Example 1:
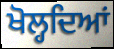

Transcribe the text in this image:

ਖੋਲ੍ਹਦਿਆਂ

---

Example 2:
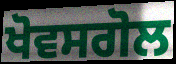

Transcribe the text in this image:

ਖੋਵਸਗੋਲ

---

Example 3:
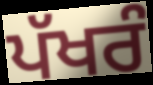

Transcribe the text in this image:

ਪੱਖਰੰ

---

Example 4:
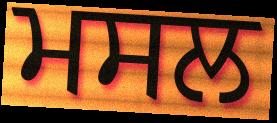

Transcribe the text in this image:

ਮਸਲ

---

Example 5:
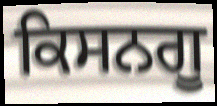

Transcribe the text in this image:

ਕਿਸਨਗੂ